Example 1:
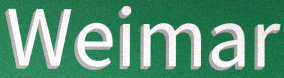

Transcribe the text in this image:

Weimar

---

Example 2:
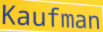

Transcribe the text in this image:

Kaufman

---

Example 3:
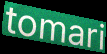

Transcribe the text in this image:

tomari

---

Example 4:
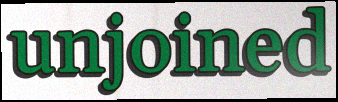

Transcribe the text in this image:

unjoined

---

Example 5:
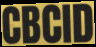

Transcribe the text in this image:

CBCID